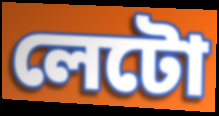
লেটো